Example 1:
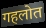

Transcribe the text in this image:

गहलोत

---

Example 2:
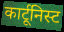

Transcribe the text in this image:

कार्टूनिस्ट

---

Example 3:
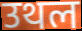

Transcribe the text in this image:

उथल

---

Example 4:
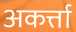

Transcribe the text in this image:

अकर्त्ता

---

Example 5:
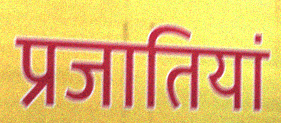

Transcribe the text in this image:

प्रजातियां